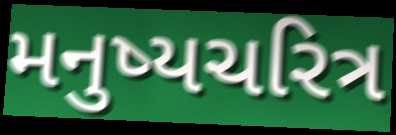
મનુષ્યચરિત્ર